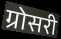
ग्रोसरी